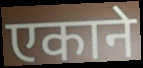
एकाने